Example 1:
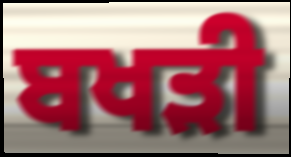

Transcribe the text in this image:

ਬਖੜੀ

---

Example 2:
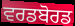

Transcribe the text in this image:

ਵਰਡਬੋਰਡ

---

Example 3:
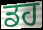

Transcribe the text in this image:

ਡਹ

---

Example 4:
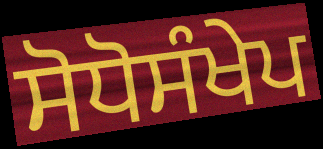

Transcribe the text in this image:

ਸੋਧੋਸੰਖੇਪ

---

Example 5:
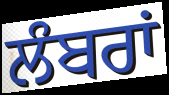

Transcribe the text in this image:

ਲੰਬਰਾਂ